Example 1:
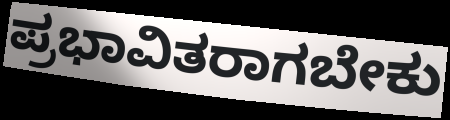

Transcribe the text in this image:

ಪ್ರಭಾವಿತರಾಗಬೇಕು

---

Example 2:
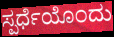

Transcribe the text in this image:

ಸ್ಪರ್ಧೆಯೊಂದು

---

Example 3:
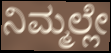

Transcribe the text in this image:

ನಿಮ್ಮಲ್ಲೇ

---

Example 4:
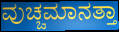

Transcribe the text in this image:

ವುಚ್ಚಮಾನತ್ತಾ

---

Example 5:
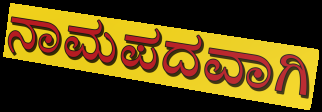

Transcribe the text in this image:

ನಾಮಪದವಾಗಿ